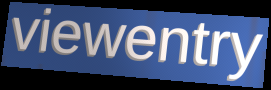
viewentry